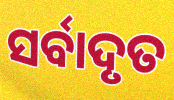
ସର୍ବାଦୃତ